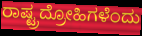
ರಾಷ್ಟ್ರದ್ರೋಹಿಗಳೆಂದು